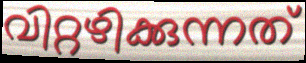
വിറ്റഴിക്കുന്നത്